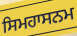
ਸਿਮਹਾਸਨਮ